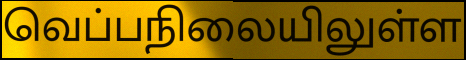
வெப்பநிலையிலுள்ள